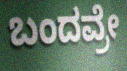
ಬಂದವ್ರೇ